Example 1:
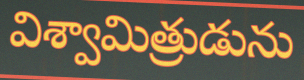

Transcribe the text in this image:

విశ్వామిత్రుడును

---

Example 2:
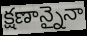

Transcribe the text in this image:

క్షణాన్నైనా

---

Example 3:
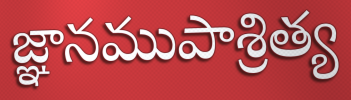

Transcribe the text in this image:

జ్ఞానముపాశ్రిత్య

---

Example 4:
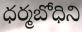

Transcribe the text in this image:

ధర్మబోధిని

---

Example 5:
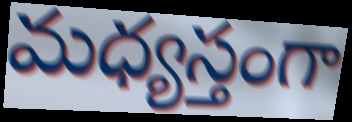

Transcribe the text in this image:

మధ్యస్తంగా